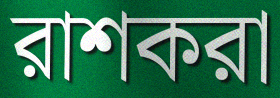
রাশকরা